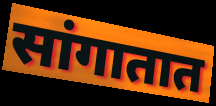
सांगातात